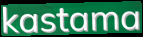
kastama